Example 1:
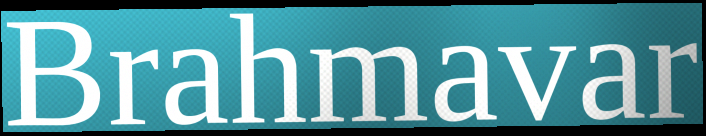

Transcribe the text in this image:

Brahmavar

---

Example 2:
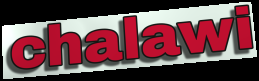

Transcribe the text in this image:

chalawi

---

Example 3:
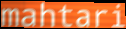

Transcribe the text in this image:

mahtari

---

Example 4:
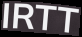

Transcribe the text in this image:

IRTT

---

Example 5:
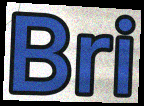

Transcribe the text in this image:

Bri